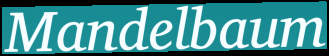
Mandelbaum